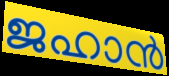
ജഹാൻ